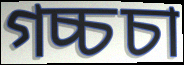
গচ্চচা